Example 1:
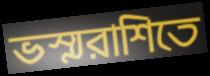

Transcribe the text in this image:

ভস্মরাশিতে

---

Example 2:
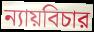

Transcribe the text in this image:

ন্যায়বিচার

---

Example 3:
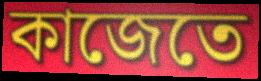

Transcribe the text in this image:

কাজেতে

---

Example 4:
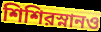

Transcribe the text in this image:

শিশিরস্নানও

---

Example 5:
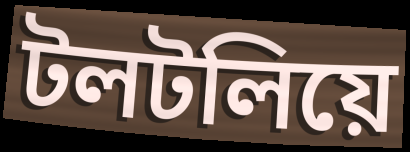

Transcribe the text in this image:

টলটলিয়ে